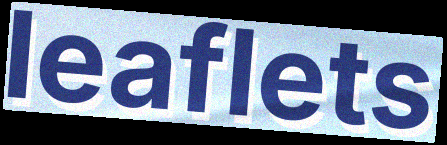
leaflets